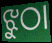
ଝୁଠା